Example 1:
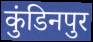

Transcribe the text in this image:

कुंडिनपुर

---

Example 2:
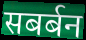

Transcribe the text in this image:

सबर्बन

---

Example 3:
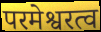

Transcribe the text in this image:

परमेश्वरत्व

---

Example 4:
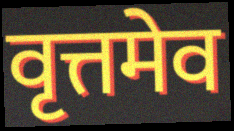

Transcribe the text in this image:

वृत्तमेव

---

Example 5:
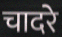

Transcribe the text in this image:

चादरे